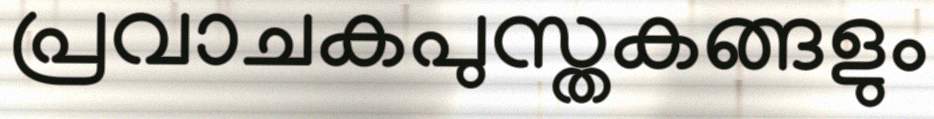
പ്രവാചകപുസ്തകങ്ങളും